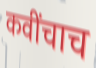
कवींचाच